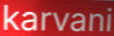
karvani